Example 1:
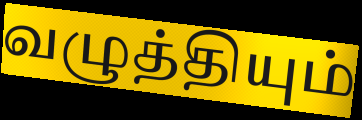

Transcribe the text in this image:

வழுத்தியும்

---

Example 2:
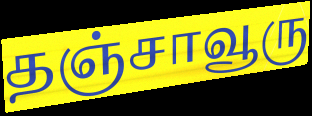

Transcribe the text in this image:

தஞ்சாவூரு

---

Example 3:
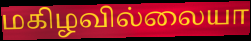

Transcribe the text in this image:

மகிழவில்லையா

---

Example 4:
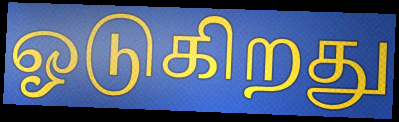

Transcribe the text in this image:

ஓடுகிறது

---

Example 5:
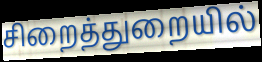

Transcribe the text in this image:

சிறைத்துறையில்